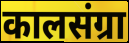
कालसंग्रा